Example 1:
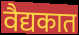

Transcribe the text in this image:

वैद्यकात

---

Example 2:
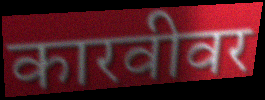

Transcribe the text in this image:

कारवीवर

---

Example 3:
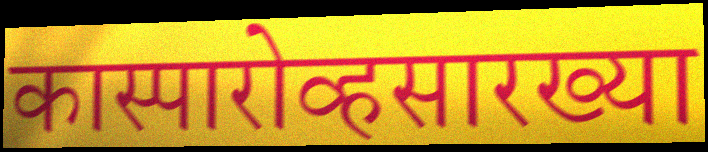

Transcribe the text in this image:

कास्पारोव्हसारख्या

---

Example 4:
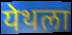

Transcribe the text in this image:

येथला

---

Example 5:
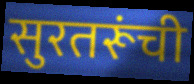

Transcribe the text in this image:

सुरतरूंची